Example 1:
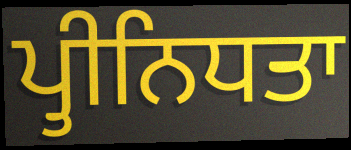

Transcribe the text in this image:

ਪ੍ਤੀਨਿਧਤਾ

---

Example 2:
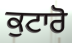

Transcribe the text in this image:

ਕੁਟਾਰੋ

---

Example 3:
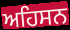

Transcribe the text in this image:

ਅਹਿਸਨ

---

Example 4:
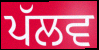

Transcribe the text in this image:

ਪੱਲਵ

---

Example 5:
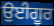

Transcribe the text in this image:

ਉਈਗੂਰ